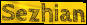
Sezhian